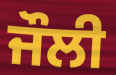
ਜੌਲੀ